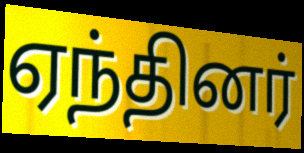
ஏந்தினர்